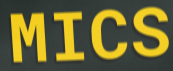
MICS